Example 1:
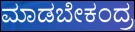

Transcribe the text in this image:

ಮಾಡಬೇಕಂದ್ರ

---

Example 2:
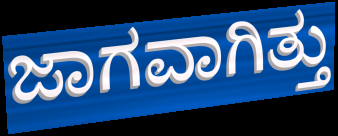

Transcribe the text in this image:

ಜಾಗವಾಗಿತ್ತು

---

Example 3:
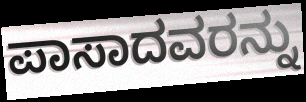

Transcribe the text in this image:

ಪಾಸಾದವರನ್ನು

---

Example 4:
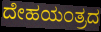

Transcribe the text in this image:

ದೇಹಯಂತ್ರದ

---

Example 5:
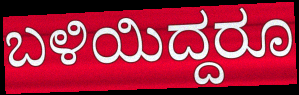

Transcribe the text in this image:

ಬಳಿಯಿದ್ದರೂ